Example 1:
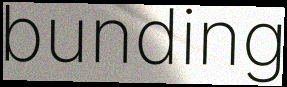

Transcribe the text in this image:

bunding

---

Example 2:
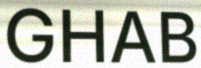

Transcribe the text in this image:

GHAB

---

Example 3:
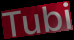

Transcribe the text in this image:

Tubi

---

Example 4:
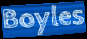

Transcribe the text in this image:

Boyles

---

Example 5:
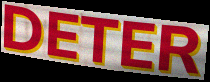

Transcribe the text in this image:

DETER